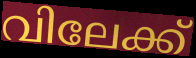
വിലേക്ക്